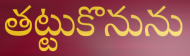
తట్టుకొనును